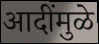
आदींमुळे